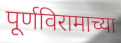
पूर्णविरामाच्या